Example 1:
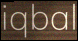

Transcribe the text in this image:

iqbal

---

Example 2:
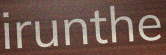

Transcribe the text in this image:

irunthe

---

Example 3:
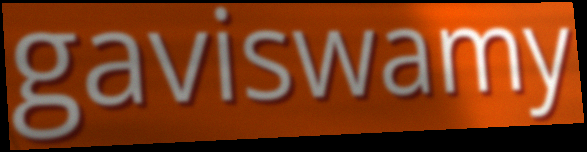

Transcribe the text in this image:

gaviswamy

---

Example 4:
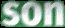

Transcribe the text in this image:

son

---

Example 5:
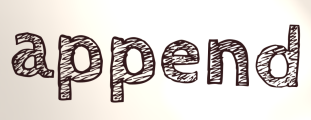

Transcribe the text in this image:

append